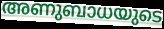
അണുബാധയുടെ